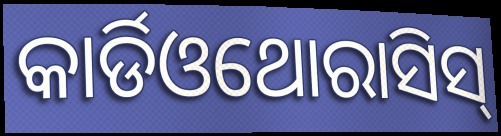
କାର୍ଡିଓଥୋରାସିସ୍